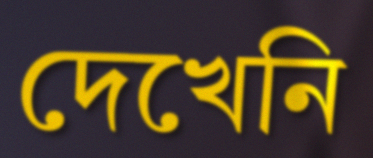
দেখেনি